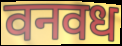
वनवध